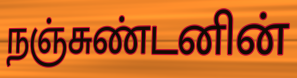
நஞ்சுண்டனின்